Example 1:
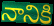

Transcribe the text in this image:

నానికి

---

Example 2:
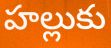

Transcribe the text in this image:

హల్లుకు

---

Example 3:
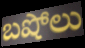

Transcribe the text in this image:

బషోలు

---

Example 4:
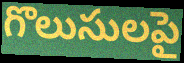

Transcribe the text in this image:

గొలుసులపై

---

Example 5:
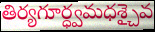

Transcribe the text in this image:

తిర్యగూర్ధ్వమధశ్చైవ